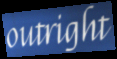
outright